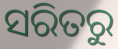
ସରିତରୁ